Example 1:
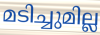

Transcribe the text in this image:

മടിച്ചുമില്ല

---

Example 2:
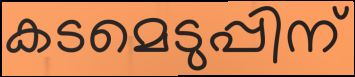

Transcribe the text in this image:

കടമെടുപ്പിന്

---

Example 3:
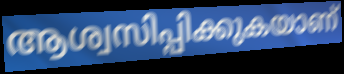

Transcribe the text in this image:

ആശ്വസിപ്പിക്കുകയാണ്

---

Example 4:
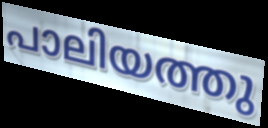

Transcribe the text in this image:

പാലിയത്തു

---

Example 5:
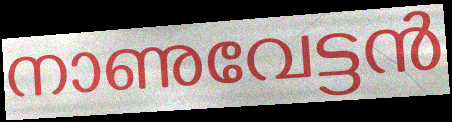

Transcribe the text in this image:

നാണുവേട്ടൻ